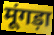
मूंगड़ा